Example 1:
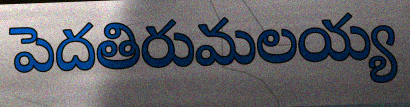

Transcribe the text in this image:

పెదతిరుమలయ్య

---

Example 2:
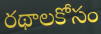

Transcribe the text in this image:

రథాలకోసం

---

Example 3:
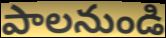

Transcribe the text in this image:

పాలనుండి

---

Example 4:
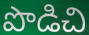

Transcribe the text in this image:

పొడిచి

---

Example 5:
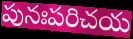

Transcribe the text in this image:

పునఃపరిచయ